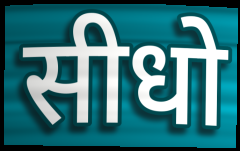
सीधो